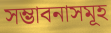
সম্ভাবনাসমূহ